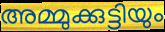
അമ്മുക്കുട്ടിയും